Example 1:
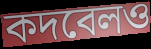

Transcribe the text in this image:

কদবেলও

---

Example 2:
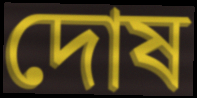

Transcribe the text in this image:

দোষ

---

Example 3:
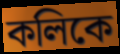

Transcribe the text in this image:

কলিকে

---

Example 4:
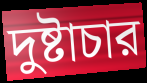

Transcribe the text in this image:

দুষ্টাচার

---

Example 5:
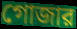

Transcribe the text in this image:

গোজার